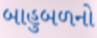
બાહુબળનો